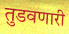
तुडवणारी